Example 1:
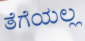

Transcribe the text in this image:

ತೆಗೆಯಲ್ಲ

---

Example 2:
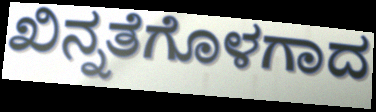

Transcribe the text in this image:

ಖಿನ್ನತೆಗೊಳಗಾದ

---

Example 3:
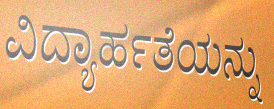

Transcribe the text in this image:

ವಿದ್ಯಾರ್ಹತೆಯನ್ನು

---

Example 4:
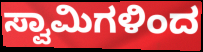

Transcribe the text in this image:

ಸ್ವಾಮಿಗಳಿಂದ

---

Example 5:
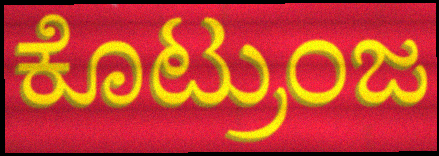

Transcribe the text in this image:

ಕೊಟ್ರುಂಜ